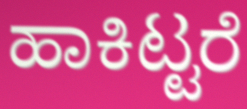
ಹಾಕಿಟ್ಟರೆ